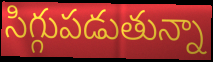
సిగ్గుపడుతున్నా